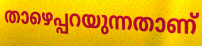
താഴെപ്പറയുന്നതാണ്